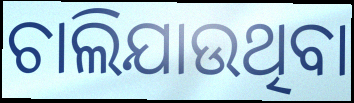
ଚାଲିଯାଉଥିବା